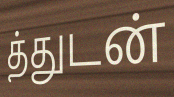
த்துடன்